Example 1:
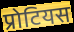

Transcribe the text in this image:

प्रोटियस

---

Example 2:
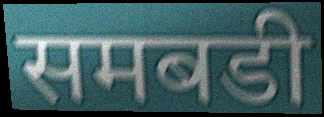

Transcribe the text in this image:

समबडी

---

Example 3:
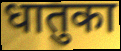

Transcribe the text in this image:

धातुका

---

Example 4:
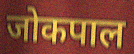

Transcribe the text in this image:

जोकपाल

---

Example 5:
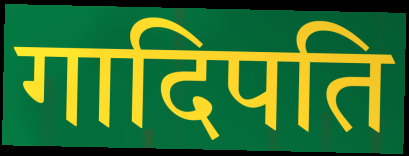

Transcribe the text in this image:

गादिपति